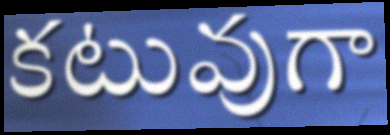
కటువుగా